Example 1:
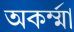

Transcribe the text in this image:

অকর্ম্মা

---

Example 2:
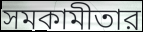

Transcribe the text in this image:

সমকামীতার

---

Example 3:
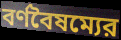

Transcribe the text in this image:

বর্ণবৈষম্যের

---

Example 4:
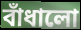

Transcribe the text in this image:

বাঁধালো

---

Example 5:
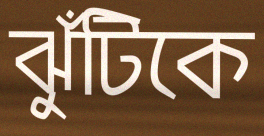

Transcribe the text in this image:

ঝুঁটিকে